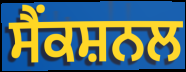
ਸੈਂਕਸ਼ਨਲ